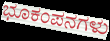
ಭೂಕಂಪನಗಳು